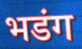
भडंग